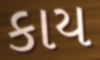
કાય